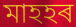
মাহহৰ